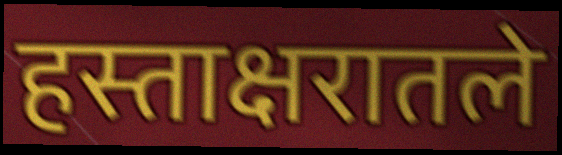
हस्ताक्षरातले